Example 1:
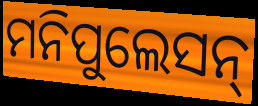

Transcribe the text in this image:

ମନିପୁଲେସନ୍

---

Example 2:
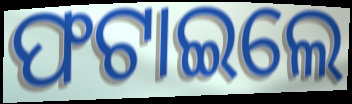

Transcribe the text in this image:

ଫଟାଇଲେ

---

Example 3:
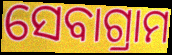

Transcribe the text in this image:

ସେବାଗ୍ରାମ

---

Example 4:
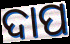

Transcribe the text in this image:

ଦାପ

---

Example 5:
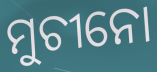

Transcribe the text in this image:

ମୁଚୀନୋ